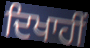
ਦਿਖਾਹੀਂ